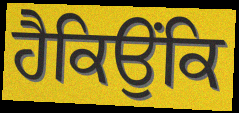
ਹੈਕਿਉਂਕਿ